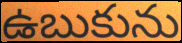
ఉబుకును